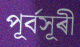
পূৰ্বসূৰী